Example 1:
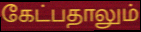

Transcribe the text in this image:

கேட்பதாலும்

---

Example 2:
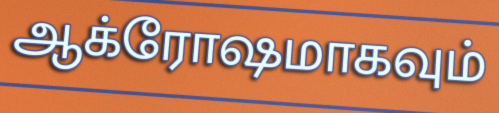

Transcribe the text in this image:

ஆக்ரோஷமாகவும்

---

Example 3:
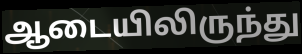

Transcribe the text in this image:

ஆடையிலிருந்து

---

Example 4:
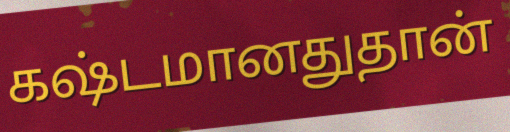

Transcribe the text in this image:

கஷ்டமானதுதான்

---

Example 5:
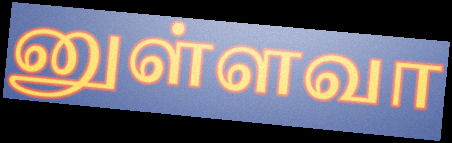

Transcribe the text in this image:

னுள்ளவா